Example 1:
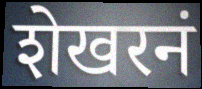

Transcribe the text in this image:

शेखरनं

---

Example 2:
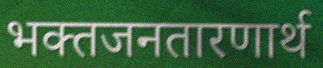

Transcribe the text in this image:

भक्तजनतारणार्थ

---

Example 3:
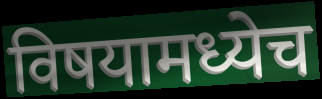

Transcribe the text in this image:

विषयामध्येच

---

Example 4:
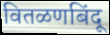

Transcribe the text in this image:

वितळणबिंदू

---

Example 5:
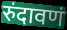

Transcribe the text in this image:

रुंदावणं